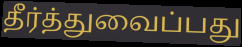
தீர்த்துவைப்பது